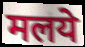
मलये